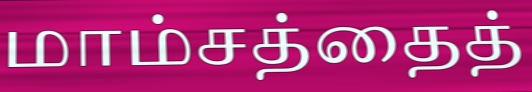
மாம்சத்தைத்